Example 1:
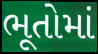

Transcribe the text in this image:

ભૂતોમાં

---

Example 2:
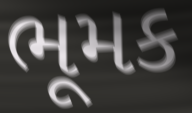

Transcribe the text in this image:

ભૂમક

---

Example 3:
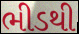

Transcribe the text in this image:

ભીડથી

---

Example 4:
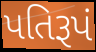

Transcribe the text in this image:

પતિરૂપં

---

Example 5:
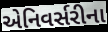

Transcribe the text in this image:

એનિવર્સરીના